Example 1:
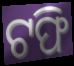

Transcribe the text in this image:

ଟଫି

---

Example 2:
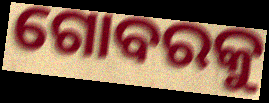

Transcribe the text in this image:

ଗୋବରକୁ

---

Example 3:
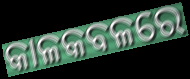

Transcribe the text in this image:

କାଳକବଳରେ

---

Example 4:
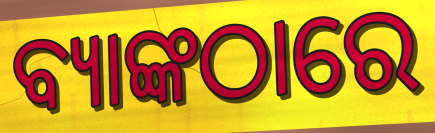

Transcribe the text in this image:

ବ୍ୟାଙ୍କଠାରେ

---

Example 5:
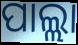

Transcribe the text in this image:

ପାଲ୍ଲା